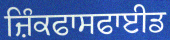
ਜ਼ਿੰਕਫਾਸਫਾਈਡ